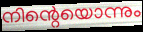
നിന്റെയൊന്നും